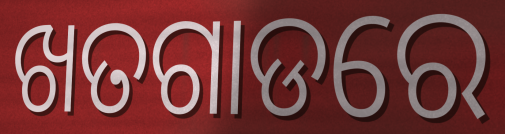
ଖତଗାଡରେ